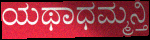
ಯಥಾಧಮ್ಮನ್ತಿ